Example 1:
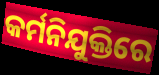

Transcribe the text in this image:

କର୍ମନିଯୁକ୍ତିରେ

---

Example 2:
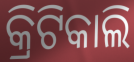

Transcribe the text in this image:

କ୍ରିଟିକାଲି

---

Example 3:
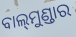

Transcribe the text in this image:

ବାଲ୍‍ମୁଣ୍ଡାର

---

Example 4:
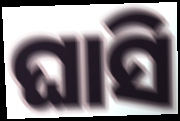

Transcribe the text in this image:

ଘାସି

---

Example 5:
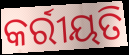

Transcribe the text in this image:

କର୍ରୀୟତି